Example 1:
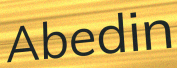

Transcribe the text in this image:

Abedin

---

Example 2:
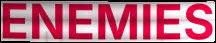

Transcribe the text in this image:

ENEMIES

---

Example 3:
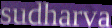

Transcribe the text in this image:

sudharva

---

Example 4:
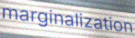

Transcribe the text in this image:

marginalization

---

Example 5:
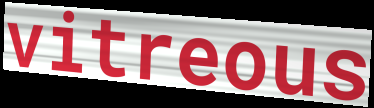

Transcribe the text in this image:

vitreous